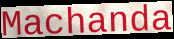
Machanda